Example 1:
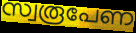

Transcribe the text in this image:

സ്വരൂപേണ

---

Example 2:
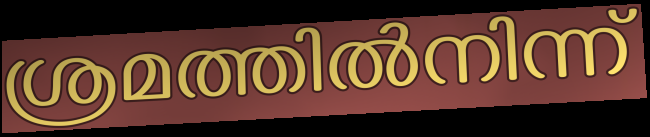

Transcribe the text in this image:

ശ്രമത്തിൽനിന്ന്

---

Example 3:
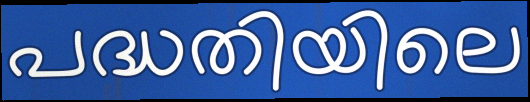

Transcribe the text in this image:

പദ്ധതിയിലെ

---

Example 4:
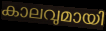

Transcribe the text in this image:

കാലവുമായി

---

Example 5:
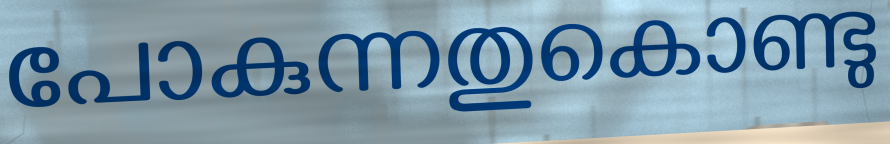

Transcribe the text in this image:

പോകുന്നതുകൊണ്ടു